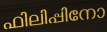
ഫിലിപ്പിനോ